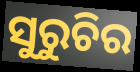
ସୁରୁଚିର